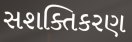
સશક્તિકરણ